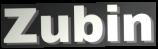
Zubin